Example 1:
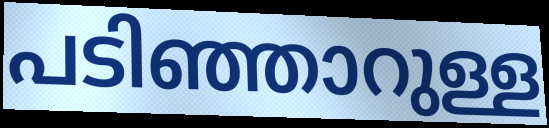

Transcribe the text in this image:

പടിഞ്ഞാറുള്ള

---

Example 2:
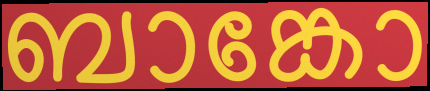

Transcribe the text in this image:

ബാങ്കോ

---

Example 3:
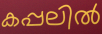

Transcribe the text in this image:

കപ്പലിൽ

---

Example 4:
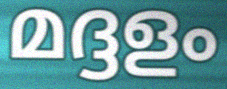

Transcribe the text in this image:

മദ്ദളം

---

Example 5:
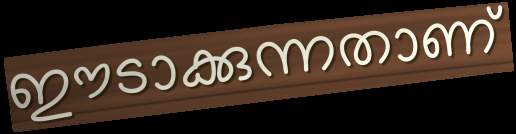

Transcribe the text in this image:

ഈടാക്കുന്നതാണ്